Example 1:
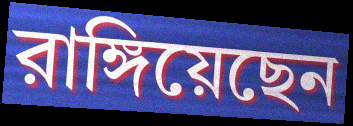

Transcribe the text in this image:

রাঙ্গিয়েছেন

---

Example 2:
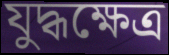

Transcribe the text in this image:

যুদ্ধক্ষেত্র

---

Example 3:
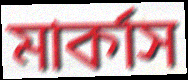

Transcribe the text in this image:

মার্কাস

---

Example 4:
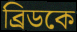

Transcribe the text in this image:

ব্রিডকে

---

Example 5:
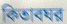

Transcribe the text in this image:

কিতাবঘর